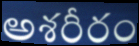
అశరీరం